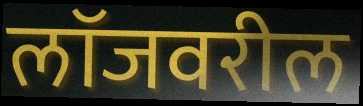
लॉजवरील